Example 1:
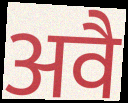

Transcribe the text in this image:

अवै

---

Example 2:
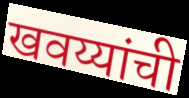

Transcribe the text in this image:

खवय्यांची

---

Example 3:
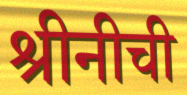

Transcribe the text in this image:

श्रीनीची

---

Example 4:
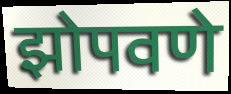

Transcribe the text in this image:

झोपवणे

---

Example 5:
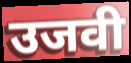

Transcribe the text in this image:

उजवी